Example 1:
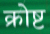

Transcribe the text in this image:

क्रोष्ट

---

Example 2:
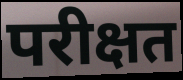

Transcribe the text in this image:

परीक्षत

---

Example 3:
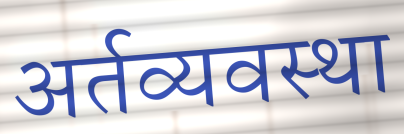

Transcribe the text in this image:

अर्तव्यवस्था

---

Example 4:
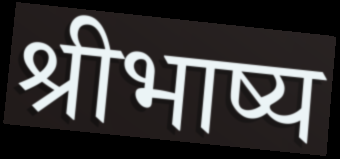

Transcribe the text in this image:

श्रीभाष्य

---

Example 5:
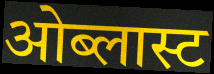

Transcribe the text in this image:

ओब्लास्ट